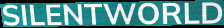
SILENTWORLD